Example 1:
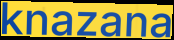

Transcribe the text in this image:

knazana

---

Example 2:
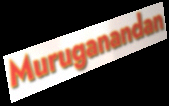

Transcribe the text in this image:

Muruganandan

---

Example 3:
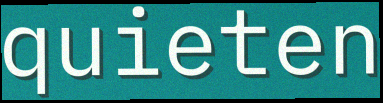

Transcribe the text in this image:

quieten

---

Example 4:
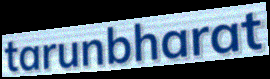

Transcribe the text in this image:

tarunbharat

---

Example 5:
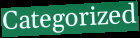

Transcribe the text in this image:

Categorized